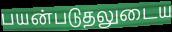
பயன்படுதலுடைய